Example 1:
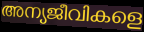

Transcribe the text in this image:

അന്യജീവികളെ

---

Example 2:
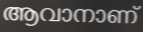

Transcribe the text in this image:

ആവാനാണ്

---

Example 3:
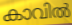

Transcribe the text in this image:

കാവിൽ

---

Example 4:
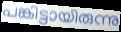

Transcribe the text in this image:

പങ്കിട്ടായിരുന്നു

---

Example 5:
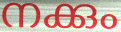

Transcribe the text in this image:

നക്കും